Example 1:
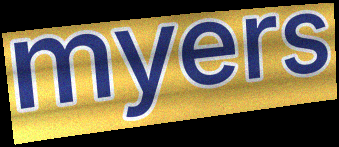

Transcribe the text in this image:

myers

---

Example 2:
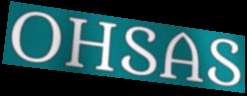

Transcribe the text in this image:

OHSAS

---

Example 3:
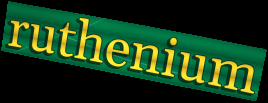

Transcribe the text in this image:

ruthenium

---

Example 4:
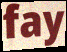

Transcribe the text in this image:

fay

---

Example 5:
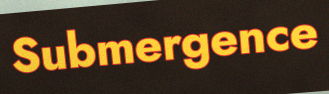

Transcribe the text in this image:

Submergence